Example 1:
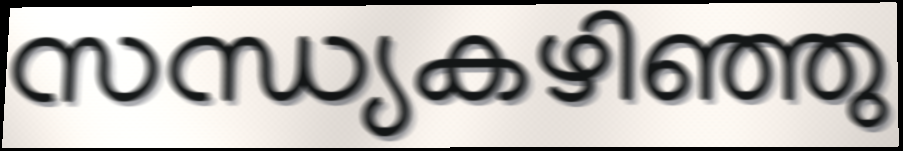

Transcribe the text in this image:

സന്ധ്യകഴിഞ്ഞു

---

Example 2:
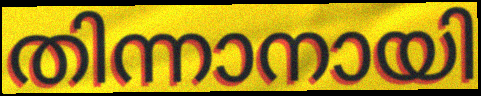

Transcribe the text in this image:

തിന്നാനായി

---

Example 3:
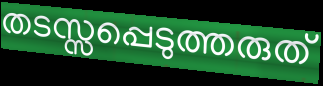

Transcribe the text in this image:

തടസ്സപ്പെടുത്തരുത്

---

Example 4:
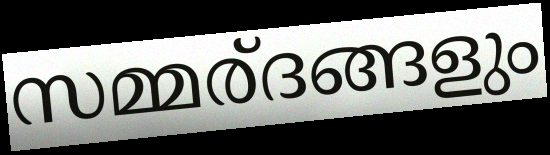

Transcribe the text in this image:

സമ്മര്ദങ്ങളും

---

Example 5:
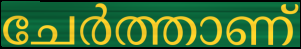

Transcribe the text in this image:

ചേർത്താണ്